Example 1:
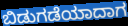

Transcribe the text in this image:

ಬಿಡುಗಡೆಯಾದಾಗ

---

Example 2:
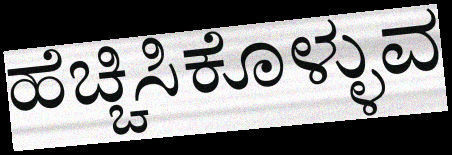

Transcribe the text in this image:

ಹೆಚ್ಚಿಸಿಕೊಳ್ಳುವ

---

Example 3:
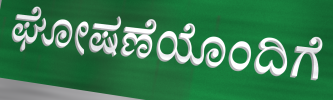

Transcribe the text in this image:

ಘೋಷಣೆಯೊಂದಿಗೆ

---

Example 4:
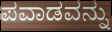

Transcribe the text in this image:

ಪವಾಡವನ್ನು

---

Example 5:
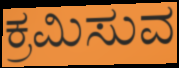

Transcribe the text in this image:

ಕ್ರಮಿಸುವ